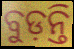
ବୁଡ଼ନ୍ତି